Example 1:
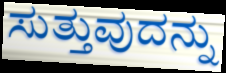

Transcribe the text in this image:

ಸುತ್ತುವುದನ್ನು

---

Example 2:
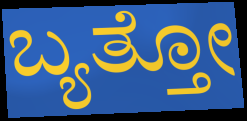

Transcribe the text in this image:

ಬ್ಯತ್ತೋ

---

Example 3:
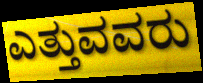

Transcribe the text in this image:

ಎತ್ತುವವರು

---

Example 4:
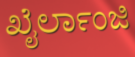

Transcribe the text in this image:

ಖೈರ್ಲಾಂಜಿ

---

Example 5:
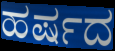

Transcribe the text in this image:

ಹರ್ಷದ